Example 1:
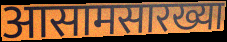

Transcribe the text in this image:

आसामसारख्या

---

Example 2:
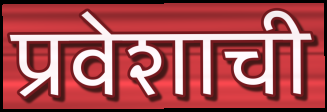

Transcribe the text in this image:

प्रवेशाची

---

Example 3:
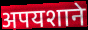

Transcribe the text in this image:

अपयशाने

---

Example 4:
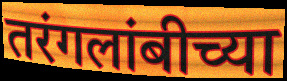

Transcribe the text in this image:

तरंगलांबीच्या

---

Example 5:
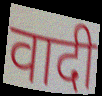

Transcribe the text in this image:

वादी